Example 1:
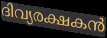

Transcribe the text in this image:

ദിവ്യരക്ഷകൻ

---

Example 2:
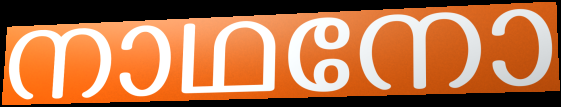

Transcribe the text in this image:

നാഥനോ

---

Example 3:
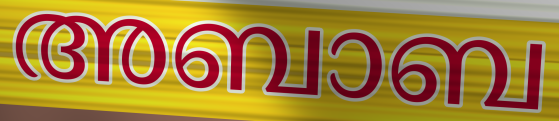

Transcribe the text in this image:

അബാബ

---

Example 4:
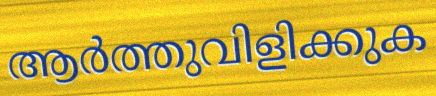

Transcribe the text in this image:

ആർത്തുവിളിക്കുക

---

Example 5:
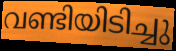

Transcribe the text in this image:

വണ്ടിയിടിച്ചു